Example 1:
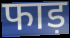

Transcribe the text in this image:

फाड़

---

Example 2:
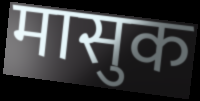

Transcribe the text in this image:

मासुक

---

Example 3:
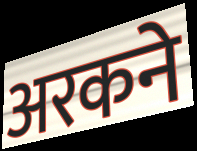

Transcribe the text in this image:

अरकने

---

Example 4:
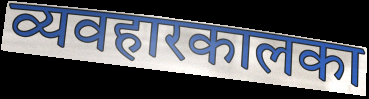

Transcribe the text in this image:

व्यवहारकालका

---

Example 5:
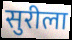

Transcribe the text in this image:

सुरीला